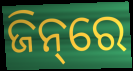
ଜିନ୍‌ରେ